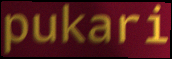
pukari